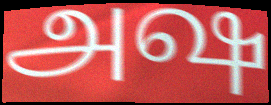
அஷ